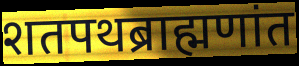
शतपथब्राह्मणांत